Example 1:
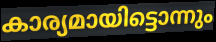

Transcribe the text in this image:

കാര്യമായിട്ടൊന്നും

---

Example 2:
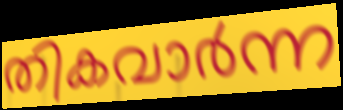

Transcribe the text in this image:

തികവാർന്ന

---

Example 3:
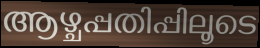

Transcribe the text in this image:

ആഴ്ചപ്പതിപ്പിലൂടെ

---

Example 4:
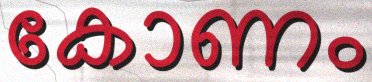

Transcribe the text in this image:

കോണം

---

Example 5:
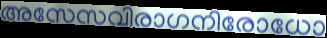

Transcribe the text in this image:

അസേസവിരാഗനിരോധോ